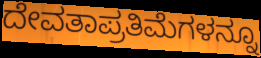
ದೇವತಾಪ್ರತಿಮೆಗಳನ್ನೂ